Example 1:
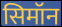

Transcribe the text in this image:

सिमॉन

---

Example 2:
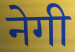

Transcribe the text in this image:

नेगी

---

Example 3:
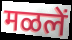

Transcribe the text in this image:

मळलें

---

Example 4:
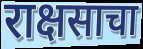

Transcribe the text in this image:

राक्षसाचा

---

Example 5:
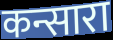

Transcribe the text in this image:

कन्सारा